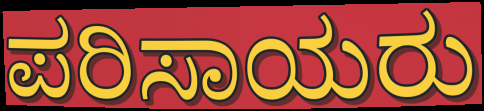
ಪರಿಸಾಯರು